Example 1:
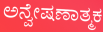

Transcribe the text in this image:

ಅನ್ವೇಷಣಾತ್ಮಕ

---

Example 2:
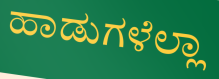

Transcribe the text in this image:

ಹಾಡುಗಳೆಲ್ಲಾ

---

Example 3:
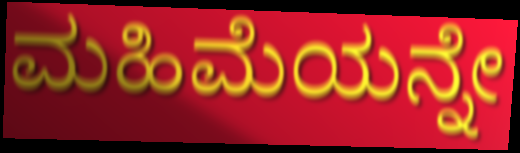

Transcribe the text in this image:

ಮಹಿಮೆಯನ್ನೇ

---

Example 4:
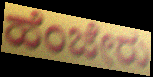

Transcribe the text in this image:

ಹೆಂಜೇರು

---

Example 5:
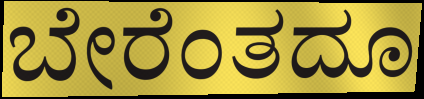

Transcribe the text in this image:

ಬೇರೆಂತದೂ